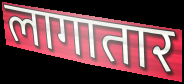
लागातार